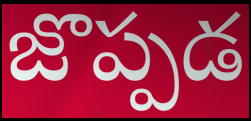
జొప్పడ